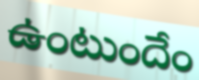
ఉంటుందేం